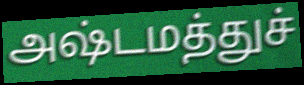
அஷ்டமத்துச்